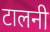
टालनी